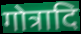
गोत्रादि